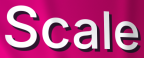
Scale